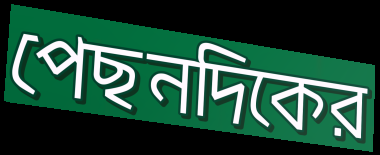
পেছনদিকের